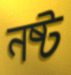
নষ্ট